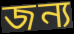
জন্য